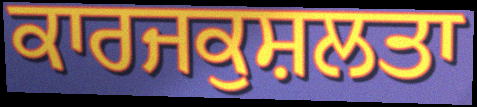
ਕਾਰਜਕੁਸ਼ਲਤਾ